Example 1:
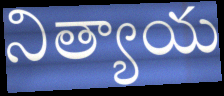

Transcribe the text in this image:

నిత్యాయ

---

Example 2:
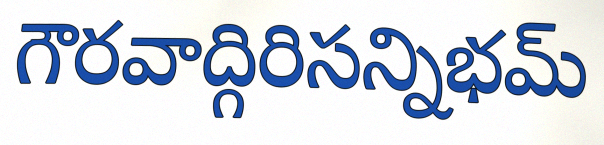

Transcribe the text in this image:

గౌరవాద్గిరిసన్నిభమ్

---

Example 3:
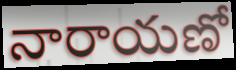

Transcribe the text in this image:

నారాయణో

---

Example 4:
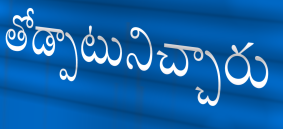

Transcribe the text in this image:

తోడ్పాటునిచ్చారు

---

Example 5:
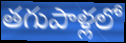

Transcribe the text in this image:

తగుపాళ్లలో